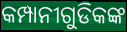
କମ୍ପାନୀଗୁଡିକଙ୍କ